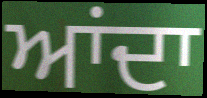
ਆਂਦਾ